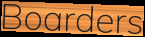
Boarders